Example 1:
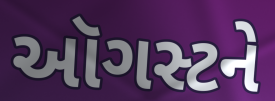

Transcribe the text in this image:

ઑગસ્ટને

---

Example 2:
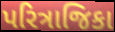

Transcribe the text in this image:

પરિત્રાજિકા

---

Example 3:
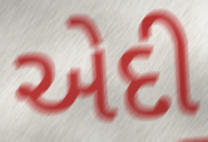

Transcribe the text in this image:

એદી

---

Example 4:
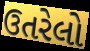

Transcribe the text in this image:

ઉતરેલો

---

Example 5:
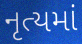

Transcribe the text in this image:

નૃત્યમાં